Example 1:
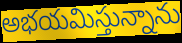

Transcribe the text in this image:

అభయమిస్తున్నాను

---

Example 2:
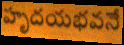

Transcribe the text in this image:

హృదయభవనే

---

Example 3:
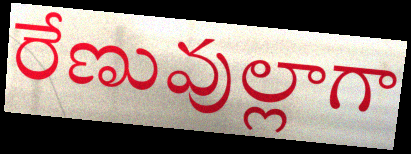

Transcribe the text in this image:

రేణువుల్లాగా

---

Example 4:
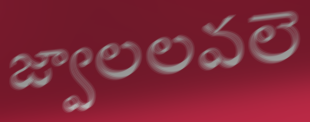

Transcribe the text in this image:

జ్వాలలవలె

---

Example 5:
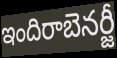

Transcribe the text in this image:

ఇందిరాబెనర్జీ